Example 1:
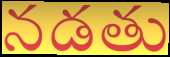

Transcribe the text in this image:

నడతు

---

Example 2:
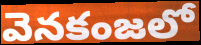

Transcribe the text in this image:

వెనకంజలో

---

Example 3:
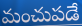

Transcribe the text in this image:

మంచుపడే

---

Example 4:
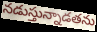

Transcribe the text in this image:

నడుస్తున్నాడతను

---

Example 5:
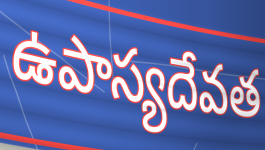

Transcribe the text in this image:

ఉపాస్యదేవత